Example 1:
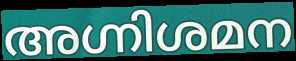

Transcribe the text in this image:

അഗ്നിശമന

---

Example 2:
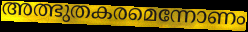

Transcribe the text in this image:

അത്ഭുതകരമെന്നോണം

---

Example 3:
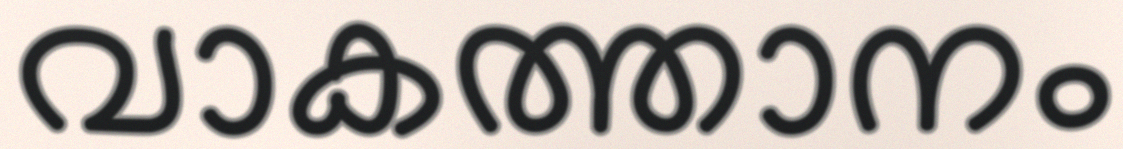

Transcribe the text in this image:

വാകത്താനം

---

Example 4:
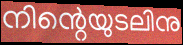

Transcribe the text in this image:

നിന്റെയുടലിനു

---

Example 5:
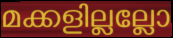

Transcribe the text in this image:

മക്കളില്ലല്ലോ